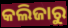
କଲିଜାରୁ